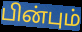
பின்பும்